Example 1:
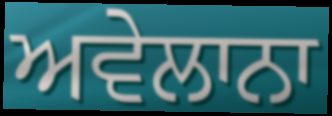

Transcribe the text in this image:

ਅਵੇਲਾਨਾ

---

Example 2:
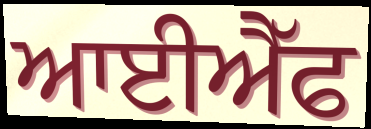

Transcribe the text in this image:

ਆਈਐੱਫ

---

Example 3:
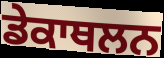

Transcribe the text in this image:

ਡੇਕਾਥਲਨ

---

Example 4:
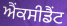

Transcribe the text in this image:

ਐਂਕਸੀਡੈਂਟ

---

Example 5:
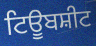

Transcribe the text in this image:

ਟਿਊਬਸ਼ੀਟ